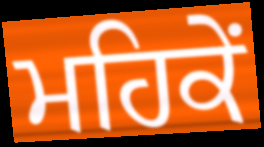
ਮਹਿਕੇਂ